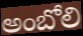
అంబోలి